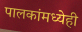
पालकांमध्येही